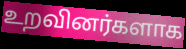
உறவினர்களாக